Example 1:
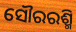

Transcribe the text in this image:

ସୌରରଶ୍ମି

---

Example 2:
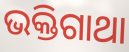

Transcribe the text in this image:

ଭକ୍ତିଗାଥା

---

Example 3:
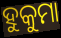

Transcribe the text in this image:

ହୁକୁମା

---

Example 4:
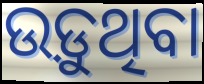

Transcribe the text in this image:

ଉଡ଼ୁଥିବା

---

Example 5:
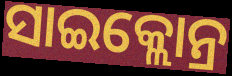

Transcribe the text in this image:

ସାଇକ୍ଲୋନ୍ର